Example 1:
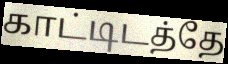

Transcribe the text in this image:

காட்டிடத்தே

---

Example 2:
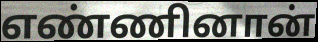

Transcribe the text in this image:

எண்ணினான்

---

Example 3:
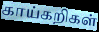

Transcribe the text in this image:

காய்கறிகள்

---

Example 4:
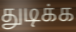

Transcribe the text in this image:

துடிக்க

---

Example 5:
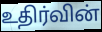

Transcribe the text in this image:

உதிர்வின்